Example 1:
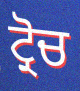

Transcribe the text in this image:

ਟ੍ਰੋਚ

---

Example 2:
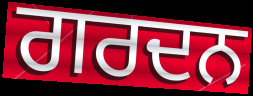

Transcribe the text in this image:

ਗਰਦਨ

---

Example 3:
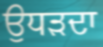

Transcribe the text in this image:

ਉਧੜਦਾ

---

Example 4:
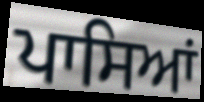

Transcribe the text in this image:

ਪਾਸਿਆਂ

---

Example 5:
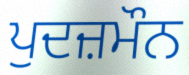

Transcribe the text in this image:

ਪੁਦਜ਼ਮੌਨ